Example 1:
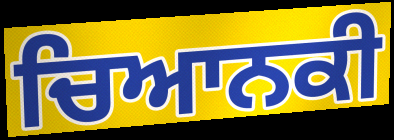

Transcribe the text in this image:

ਚਿਆਨਕੀ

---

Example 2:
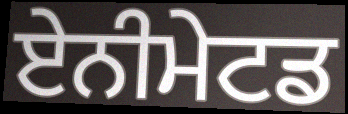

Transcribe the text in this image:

ਏਨੀਮੇਟਡ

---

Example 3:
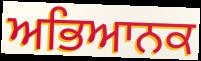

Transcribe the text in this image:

ਅਭਿਆਨਕ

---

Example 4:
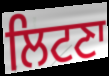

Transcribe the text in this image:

ਲਿਟਣਾ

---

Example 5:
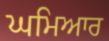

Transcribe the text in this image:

ਘਮਿਆਰ